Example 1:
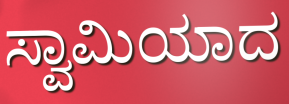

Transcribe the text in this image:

ಸ್ವಾಮಿಯಾದ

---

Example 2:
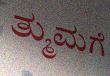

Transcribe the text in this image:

ತ್ಮುಮಗೆ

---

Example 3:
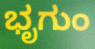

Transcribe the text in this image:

ಭೃಗುಂ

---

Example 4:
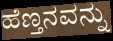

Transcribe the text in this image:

ಹೆಣ್ತನವನ್ನು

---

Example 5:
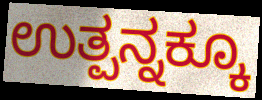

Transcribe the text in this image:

ಉತ್ಪನ್ನಕ್ಕೂ